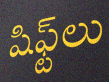
షిఫ్ట్‌లు